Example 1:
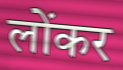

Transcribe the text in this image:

लोंकर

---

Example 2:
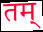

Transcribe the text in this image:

तम्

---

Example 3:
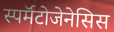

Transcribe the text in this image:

स्पर्मॅटोजेनेसिस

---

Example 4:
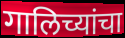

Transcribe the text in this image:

गालिच्यांचा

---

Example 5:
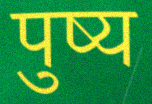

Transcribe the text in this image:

पुष्य